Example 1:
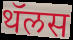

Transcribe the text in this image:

थॅलस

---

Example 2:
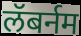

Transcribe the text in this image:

लॅबर्नम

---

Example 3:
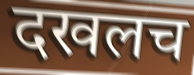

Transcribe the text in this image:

दखलच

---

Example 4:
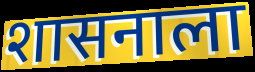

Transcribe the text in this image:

शासनाला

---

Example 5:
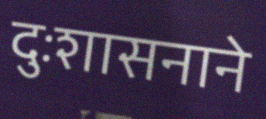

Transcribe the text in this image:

दुःशासनाने